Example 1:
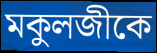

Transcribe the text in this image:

মকুলজীকে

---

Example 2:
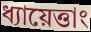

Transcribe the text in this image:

ধ্যায়েত্তাং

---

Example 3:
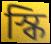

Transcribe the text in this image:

স্কি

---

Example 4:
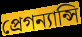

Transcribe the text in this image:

প্রেগন্যান্সি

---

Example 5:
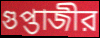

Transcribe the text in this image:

গুপ্তাজীর